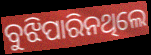
ବୁଝିପାରିନଥିଲେ